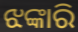
ଝଙ୍କାରି